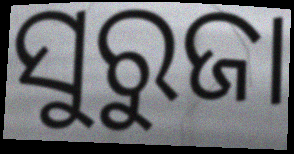
ସୁରୁଜା